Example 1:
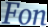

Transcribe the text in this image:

Fon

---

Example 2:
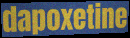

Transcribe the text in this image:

dapoxetine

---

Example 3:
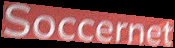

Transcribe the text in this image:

Soccernet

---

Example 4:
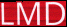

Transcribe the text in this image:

LMD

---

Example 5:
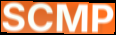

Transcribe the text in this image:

SCMP